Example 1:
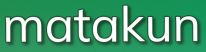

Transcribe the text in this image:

matakun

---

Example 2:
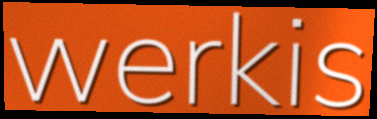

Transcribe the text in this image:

werkis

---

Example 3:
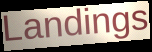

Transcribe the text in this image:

Landings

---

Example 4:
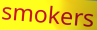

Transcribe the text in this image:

smokers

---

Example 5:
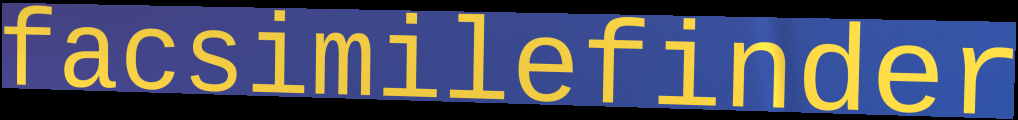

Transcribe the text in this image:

facsimilefinder